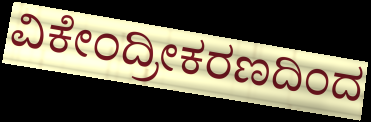
ವಿಕೇಂದ್ರೀಕರಣದಿಂದ